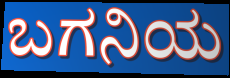
ಬಗನಿಯ